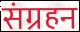
संग्रहन